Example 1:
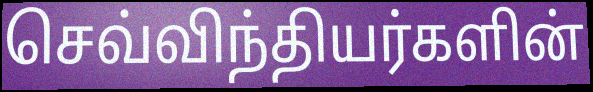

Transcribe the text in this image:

செவ்விந்தியர்களின்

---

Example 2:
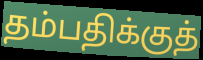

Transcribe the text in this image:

தம்பதிக்குத்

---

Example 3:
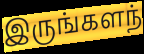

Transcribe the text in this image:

இருங்களந்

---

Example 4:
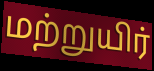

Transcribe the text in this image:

மற்றுயிர்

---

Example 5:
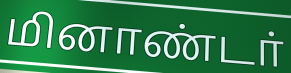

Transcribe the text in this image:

மினாண்டர்